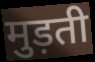
मुड़ती